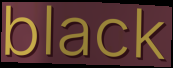
black